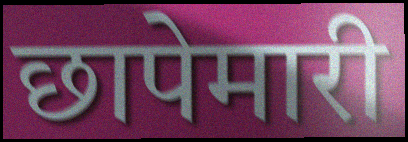
छापेमारी